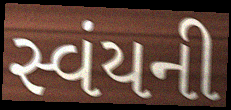
સ્વંયની